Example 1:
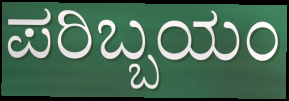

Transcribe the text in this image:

ಪರಿಬ್ಬಯಂ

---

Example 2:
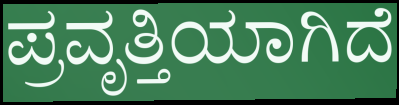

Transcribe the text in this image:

ಪ್ರವೃತ್ತಿಯಾಗಿದೆ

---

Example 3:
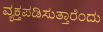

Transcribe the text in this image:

ವ್ಯಕ್ತಪಡಿಸುತ್ತಾರೆಂದು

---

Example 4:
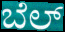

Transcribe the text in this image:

ಬೆಲ್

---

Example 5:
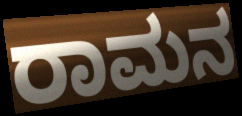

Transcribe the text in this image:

ರಾಮನ